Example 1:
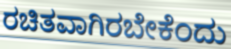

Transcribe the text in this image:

ರಚಿತವಾಗಿರಬೇಕೆಂದು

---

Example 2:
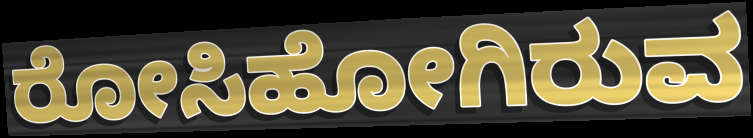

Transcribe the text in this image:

ರೋಸಿಹೋಗಿರುವ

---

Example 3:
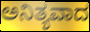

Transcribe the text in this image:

ಅನಿತ್ಯವಾದ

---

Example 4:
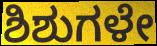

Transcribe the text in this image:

ಶಿಶುಗಳೇ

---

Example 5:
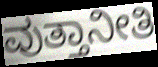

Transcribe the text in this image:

ವುತ್ತಾನೀತಿ